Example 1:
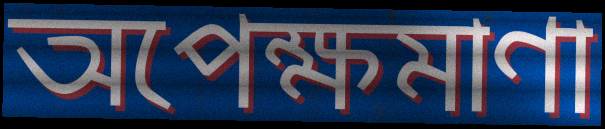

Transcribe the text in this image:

অপেক্ষমাণা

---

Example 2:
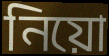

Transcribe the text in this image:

নিয়ো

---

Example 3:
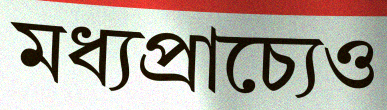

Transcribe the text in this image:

মধ্যপ্রাচ্যেও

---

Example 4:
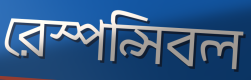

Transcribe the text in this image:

রেস্পন্সিবল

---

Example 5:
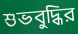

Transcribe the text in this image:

শুভবুদ্ধির